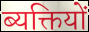
ब्यक्तियों